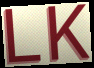
LK